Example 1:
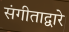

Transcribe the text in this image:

संगीताद्वारे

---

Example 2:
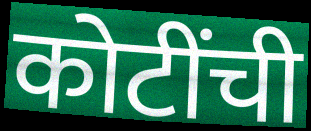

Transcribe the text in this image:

कोटींची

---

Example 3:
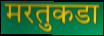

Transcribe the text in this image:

मरतुकडा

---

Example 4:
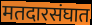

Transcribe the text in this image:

मतदारसंघात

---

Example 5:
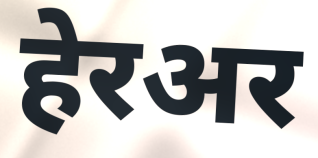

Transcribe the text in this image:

हेरअर